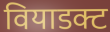
वियाडक्ट